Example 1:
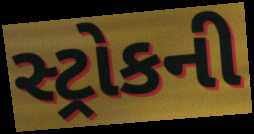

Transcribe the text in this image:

સ્ટ્રોકની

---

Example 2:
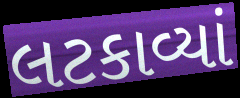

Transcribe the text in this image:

લટકાવ્યાં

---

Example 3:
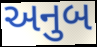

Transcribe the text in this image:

અનુબ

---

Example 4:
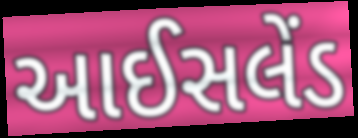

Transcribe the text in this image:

આઈસલેંડ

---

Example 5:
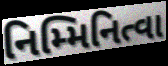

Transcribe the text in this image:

નિમ્મિનિત્વા